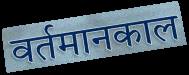
वर्तमानकाल